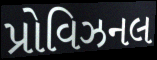
પ્રોવિઝનલ